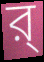
র্